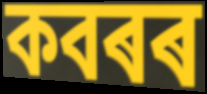
কবৰৰ